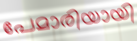
പേമാരിയായി